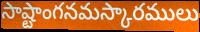
సాష్టాంగనమస్కారములు